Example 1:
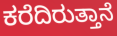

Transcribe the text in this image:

ಕರೆದಿರುತ್ತಾನೆ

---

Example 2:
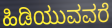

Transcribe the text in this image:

ಹಿಡಿಯುವವರೆ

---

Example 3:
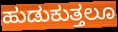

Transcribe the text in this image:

ಹುಡುಕುತ್ತಲೂ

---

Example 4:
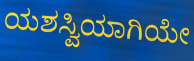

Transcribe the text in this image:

ಯಶಸ್ವಿಯಾಗಿಯೇ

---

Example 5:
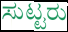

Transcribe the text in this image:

ಸುಟ್ಟರು